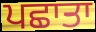
ਪਛਾਤਾ